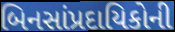
બિનસાંપ્રદાયિકોની